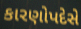
કારણોપદેસે